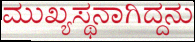
ಮುಖ್ಯಸ್ಥನಾಗಿದ್ದನು